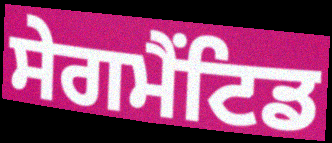
ਸੇਗਮੈਂਟਿਡ